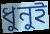
ধুনুই